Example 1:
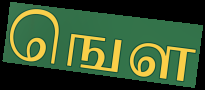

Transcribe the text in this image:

ஙௌ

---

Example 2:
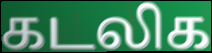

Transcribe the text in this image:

கடலிக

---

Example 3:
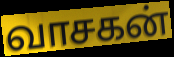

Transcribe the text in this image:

வாசகன்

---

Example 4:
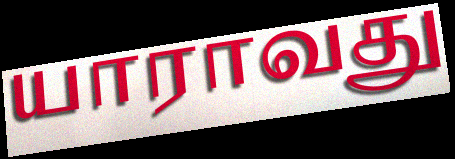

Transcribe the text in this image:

யாராவது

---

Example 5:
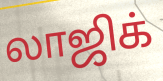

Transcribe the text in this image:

லாஜிக்